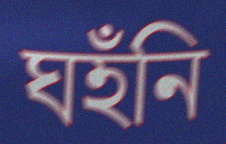
ঘহঁনি